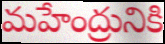
మహేంద్రునికి